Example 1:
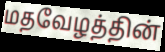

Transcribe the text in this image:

மதவேழத்தின்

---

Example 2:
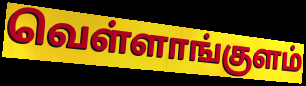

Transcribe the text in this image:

வெள்ளாங்குளம்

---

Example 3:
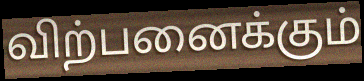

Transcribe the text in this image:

விற்பனைக்கும்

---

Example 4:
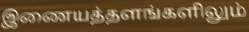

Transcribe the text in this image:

இணையத்தளங்களிலும்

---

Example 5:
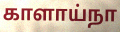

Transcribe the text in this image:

காளாய்நா